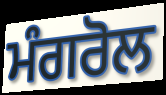
ਮੰਗਰੋਲ